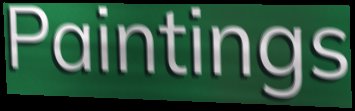
Paintings